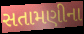
સતામણીના